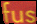
fus